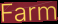
Farm